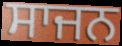
ਸਾਜਨ